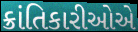
ક્રાંતિકારીઓએ